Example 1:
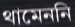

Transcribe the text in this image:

থামেননি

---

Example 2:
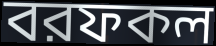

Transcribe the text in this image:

বরফকল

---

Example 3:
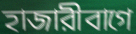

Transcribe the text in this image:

হাজারীবাগে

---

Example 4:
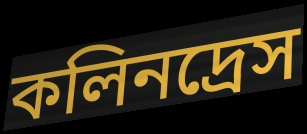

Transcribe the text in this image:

কলিনদ্রেস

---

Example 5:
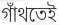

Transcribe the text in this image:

গাঁথতেই